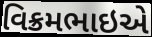
વિક્રમભાઇએ